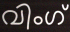
വിംഗ്